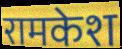
रामकेश